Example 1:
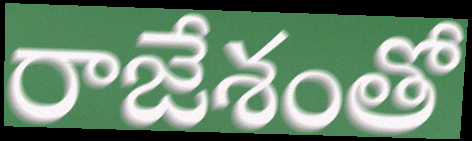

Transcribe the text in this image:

రాజేశంతో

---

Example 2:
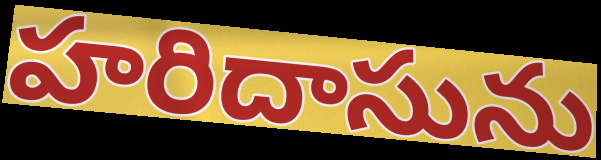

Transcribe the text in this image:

హరిదాసును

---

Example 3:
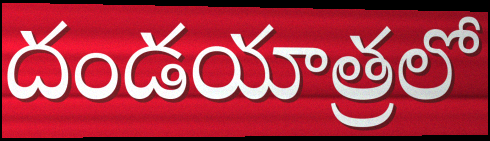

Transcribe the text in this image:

దండయాత్రలో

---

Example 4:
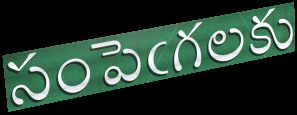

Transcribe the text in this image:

సంపెఁగలకు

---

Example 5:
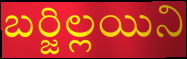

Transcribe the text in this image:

బర్జిల్లయిని